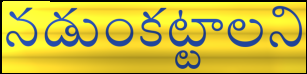
నడుంకట్టాలని